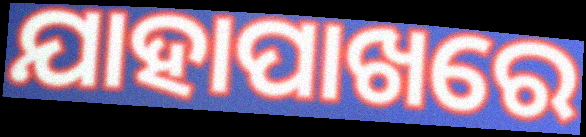
ଯାହାପାଖରେ